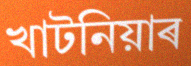
খাটনিয়াৰ